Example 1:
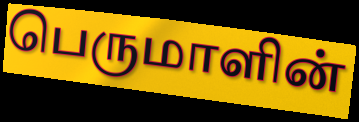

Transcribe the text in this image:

பெருமாளின்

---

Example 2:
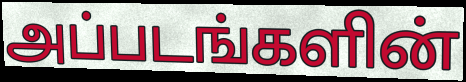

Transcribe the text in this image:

அப்படங்களின்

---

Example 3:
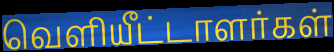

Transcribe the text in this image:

வெளியீட்டாளர்கள்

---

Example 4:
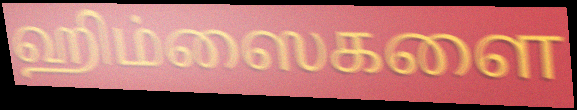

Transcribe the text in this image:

ஹிம்ஸைகளை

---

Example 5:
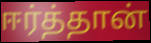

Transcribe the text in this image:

ஈர்த்தான்